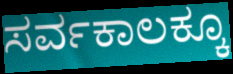
ಸರ್ವಕಾಲಕ್ಕೂ